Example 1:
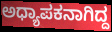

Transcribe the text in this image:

ಅಧ್ಯಾಪಕನಾಗಿದ್ದ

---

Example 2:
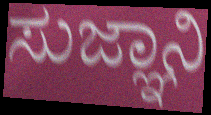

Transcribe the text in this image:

ಸುಜ್ಞಾನಿ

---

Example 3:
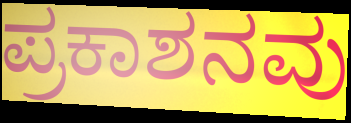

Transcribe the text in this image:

ಪ್ರಕಾಶನವು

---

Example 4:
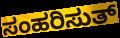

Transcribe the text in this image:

ಸಂಹರಿಸುತ್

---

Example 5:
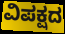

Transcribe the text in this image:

ವಿಪಕ್ಷದ